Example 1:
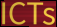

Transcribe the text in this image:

ICTs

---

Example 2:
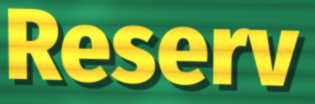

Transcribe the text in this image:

Reserv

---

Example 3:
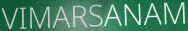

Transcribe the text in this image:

VIMARSANAM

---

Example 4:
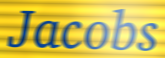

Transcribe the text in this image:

Jacobs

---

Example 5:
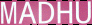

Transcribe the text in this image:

MADHU